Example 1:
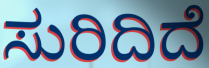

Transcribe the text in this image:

ಸುರಿದಿದೆ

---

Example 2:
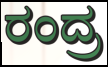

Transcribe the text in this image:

ರಂದ್ರ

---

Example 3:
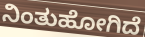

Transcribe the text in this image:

ನಿಂತುಹೋಗಿದೆ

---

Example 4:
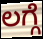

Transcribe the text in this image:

ಲಗ್ಗೆ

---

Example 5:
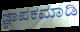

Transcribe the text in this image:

ಜ್ಞಾಪಕಮಾಡಿ